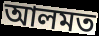
আলমত